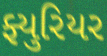
ફ્યુરિયર